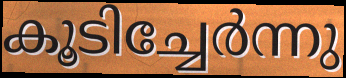
കൂടിച്ചേർന്നു